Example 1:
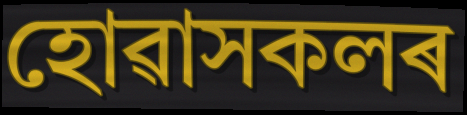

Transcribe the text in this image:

হোৱাসকলৰ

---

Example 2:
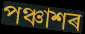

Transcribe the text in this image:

পঞ্চাশৰ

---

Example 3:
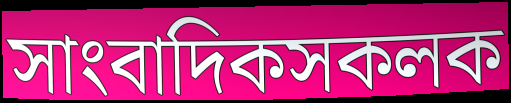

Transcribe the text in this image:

সাংবাদিকসকলক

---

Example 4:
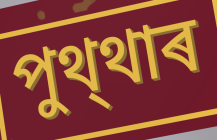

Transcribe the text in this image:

পুথ্থাৰ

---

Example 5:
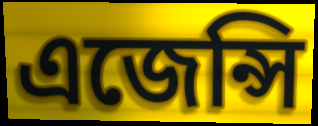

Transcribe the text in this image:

এজেন্সি